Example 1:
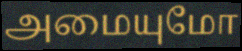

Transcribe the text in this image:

அமையுமோ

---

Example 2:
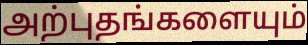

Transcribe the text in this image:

அற்புதங்களையும்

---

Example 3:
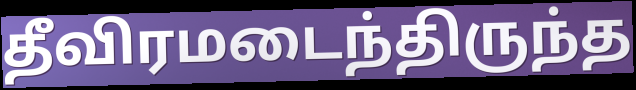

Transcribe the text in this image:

தீவிரமடைந்திருந்த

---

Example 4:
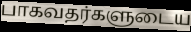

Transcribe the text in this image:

பாகவதர்களுடைய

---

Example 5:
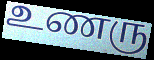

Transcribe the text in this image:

உணரு